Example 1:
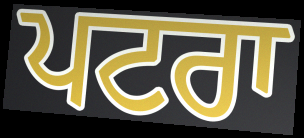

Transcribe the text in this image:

ਪਟਰਾ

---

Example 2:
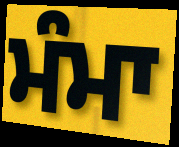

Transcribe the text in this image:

ਮੰਮਾ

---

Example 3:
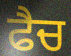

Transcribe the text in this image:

ਫੈਚ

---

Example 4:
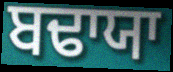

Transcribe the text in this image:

ਬਢਾਯਾ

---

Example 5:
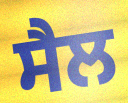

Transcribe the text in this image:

ਸੈਲ